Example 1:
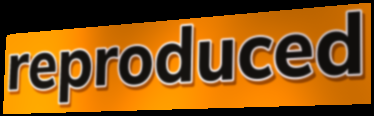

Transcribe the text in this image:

reproduced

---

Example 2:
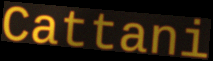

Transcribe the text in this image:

Cattani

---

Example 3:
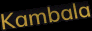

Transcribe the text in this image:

Kambala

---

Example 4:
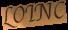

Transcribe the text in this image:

LOINC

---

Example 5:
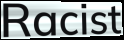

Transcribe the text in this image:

Racist